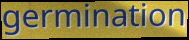
germination